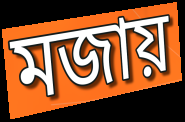
মজায়